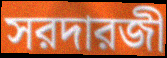
সরদারজী